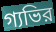
গ্যভির